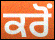
ਕਰੋਂ